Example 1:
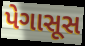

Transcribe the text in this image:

પેગાસૂસ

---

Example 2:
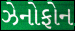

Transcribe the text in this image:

ઝેનોફોન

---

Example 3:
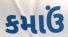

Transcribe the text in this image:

કમાઉં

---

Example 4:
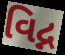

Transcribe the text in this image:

વિદ્ન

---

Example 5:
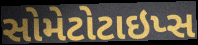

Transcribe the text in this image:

સોમેટોટાઇપ્સ